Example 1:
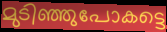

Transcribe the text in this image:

മുടിഞ്ഞുപോകട്ടെ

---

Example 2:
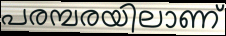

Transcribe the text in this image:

പരമ്പരയിലാണ്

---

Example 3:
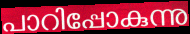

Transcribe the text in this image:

പാറിപ്പോകുന്നു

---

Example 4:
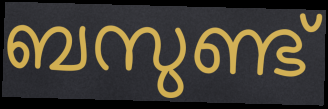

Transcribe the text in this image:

ബസുണ്ട്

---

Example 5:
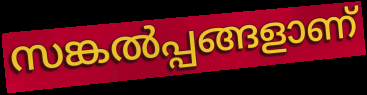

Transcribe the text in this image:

സങ്കൽപ്പങ്ങളാണ്